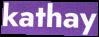
kathay